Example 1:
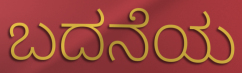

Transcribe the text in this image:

ಬದನೆಯ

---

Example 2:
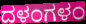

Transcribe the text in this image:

ದಳಂಗಳಂ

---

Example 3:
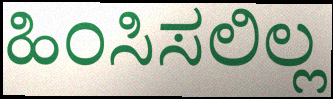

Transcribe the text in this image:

ಹಿಂಸಿಸಲಿಲ್ಲ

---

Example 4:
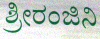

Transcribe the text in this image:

ಶ್ರೀರಂಜಿನಿ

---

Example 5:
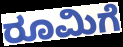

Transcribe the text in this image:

ರೂಮಿಗೆ